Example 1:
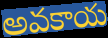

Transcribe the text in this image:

అవకాయ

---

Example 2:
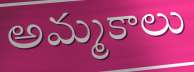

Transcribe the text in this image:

అమ్మకాలు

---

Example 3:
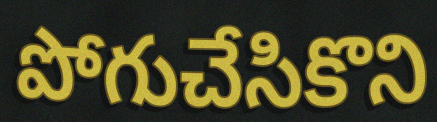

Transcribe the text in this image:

పోగుచేసికొని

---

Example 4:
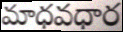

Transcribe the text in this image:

మాధవధార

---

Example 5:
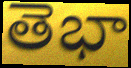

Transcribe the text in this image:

తెభా